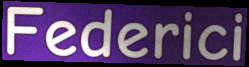
Federici